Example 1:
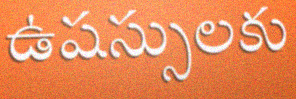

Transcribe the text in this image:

ఉషస్సులకు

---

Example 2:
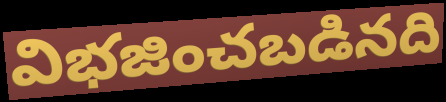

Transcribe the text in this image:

విభజించబడినది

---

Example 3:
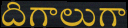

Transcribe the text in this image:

దిగాలుగా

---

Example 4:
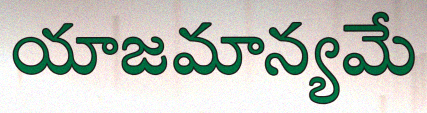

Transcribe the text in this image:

యాజమాన్యమే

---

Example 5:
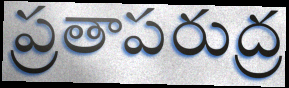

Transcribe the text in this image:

ప్రతాపరుద్ర